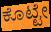
ಕೊಟ್ಟೇ